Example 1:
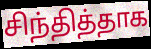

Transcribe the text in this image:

சிந்தித்தாக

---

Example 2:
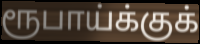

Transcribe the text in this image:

ரூபாய்க்குக்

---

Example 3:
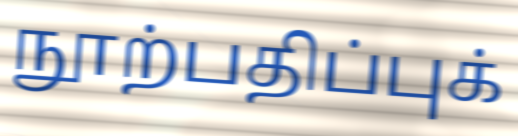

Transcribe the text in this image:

நூற்பதிப்புக்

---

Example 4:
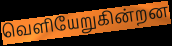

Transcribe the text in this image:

வெளியேறுகின்றன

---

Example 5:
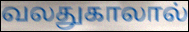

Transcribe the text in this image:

வலதுகாலால்